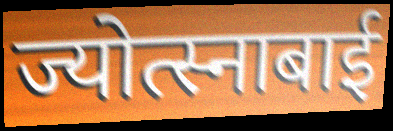
ज्योत्स्नाबाई